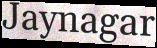
Jaynagar